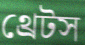
থ্রেটস